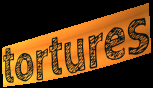
tortures